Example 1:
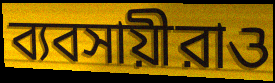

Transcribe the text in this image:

ব্যবসায়ীরাও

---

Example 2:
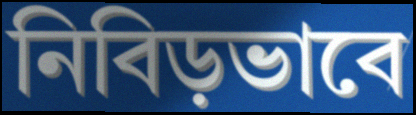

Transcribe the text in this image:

নিবিড়ভাবে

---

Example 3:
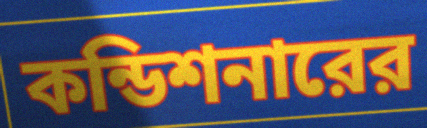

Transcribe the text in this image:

কন্ডিশনারের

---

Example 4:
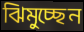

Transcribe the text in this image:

ঝিমুচ্ছেন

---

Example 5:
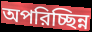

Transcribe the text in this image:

অপরিচ্ছিন্ন